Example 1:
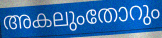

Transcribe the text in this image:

അകലുംതോറും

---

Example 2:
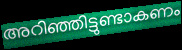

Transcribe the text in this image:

അറിഞ്ഞിട്ടുണ്ടാകണം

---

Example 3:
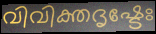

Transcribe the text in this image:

വിവിക്തദൃഷ്ടേഃ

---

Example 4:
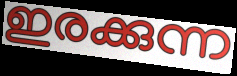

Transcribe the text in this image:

ഇരക്കുന്ന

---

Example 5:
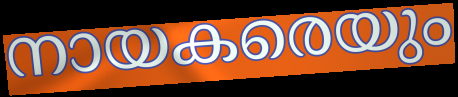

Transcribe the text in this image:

നായകരെയും